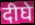
दीघे